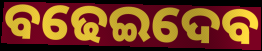
ବଢେଇଦେବ